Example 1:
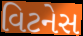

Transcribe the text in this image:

વિટનેસ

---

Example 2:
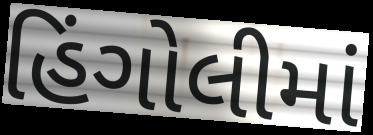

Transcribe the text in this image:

હિંગોલીમાં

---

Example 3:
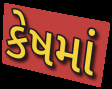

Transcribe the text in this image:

કેષમાં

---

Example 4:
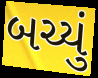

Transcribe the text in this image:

બચ્યું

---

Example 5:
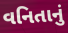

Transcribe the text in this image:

વનિતાનું